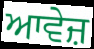
ਆਵੇਜ਼